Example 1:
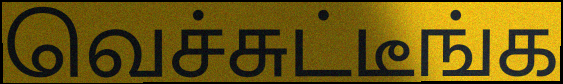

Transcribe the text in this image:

வெச்சுட்டீங்க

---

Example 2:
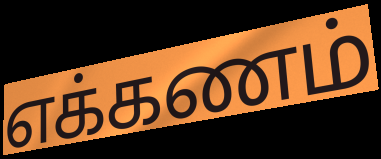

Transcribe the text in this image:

எக்கணம்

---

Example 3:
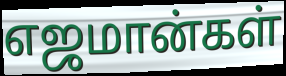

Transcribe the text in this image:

எஜமான்கள்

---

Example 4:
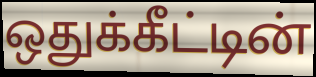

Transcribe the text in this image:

ஒதுக்கீட்டின்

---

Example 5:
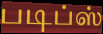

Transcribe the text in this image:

படிப்ஸ்